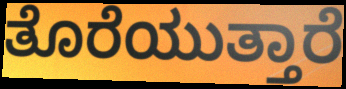
ತೊರೆಯುತ್ತಾರೆ